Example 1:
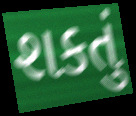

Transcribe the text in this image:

શકતું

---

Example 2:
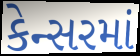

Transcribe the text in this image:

કેન્સરમાં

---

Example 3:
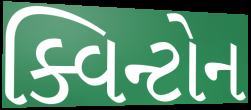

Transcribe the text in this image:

ક્વિન્ટોન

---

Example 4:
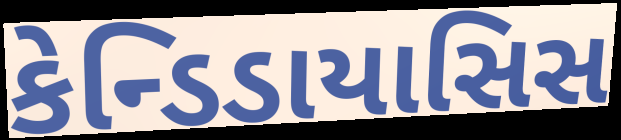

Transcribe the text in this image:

કેન્ડિડાયાસિસ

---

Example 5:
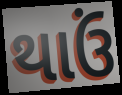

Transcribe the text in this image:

થાઉં